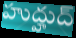
హుద్హుద్